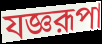
যজ্ঞরূপা